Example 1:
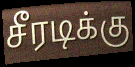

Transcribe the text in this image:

சீரடிக்கு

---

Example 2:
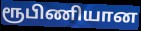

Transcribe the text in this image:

ரூபிணியான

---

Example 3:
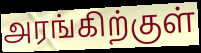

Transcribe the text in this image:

அரங்கிற்குள்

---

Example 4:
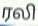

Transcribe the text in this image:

ரலி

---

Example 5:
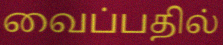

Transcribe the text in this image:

வைப்பதில்